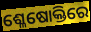
ଶ୍ଳେଷୋକ୍ତିରେ